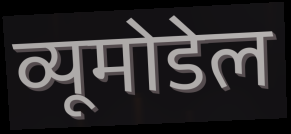
व्यूमोडेल